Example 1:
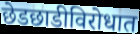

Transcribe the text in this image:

छेडछाडीविरोधात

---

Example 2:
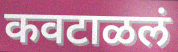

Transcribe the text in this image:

कवटाळलं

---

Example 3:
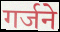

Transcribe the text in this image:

गर्जने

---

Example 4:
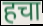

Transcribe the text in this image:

हचा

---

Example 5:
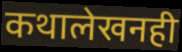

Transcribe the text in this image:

कथालेखनही